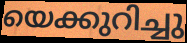
യെക്കുറിച്ചു